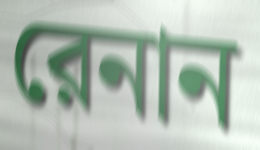
রেনান